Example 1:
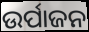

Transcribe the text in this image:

ଉର୍ପାଜନ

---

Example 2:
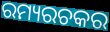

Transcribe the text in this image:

ରମ୍ୟରଚକର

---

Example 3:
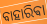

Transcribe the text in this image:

ବାହାରିଵା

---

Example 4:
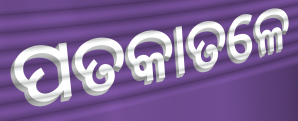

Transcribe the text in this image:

ପତକାତଳେ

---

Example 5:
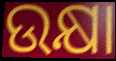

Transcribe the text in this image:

ଉକ୍ଷା